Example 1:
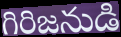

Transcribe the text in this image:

గిరిజనుడి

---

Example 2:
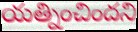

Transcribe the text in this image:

యత్నించిందని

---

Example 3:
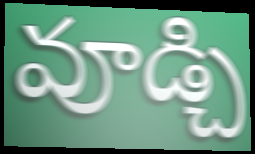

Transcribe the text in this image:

వూడ్చి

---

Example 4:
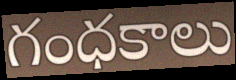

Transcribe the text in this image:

గంధకాలు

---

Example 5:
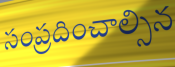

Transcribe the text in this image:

సంప్రదించాల్సిన